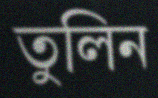
তুলিন